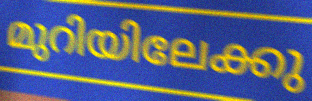
മുറിയിലേക്കു